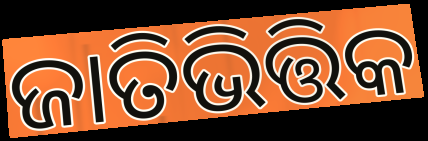
ଜାତିଭିତ୍ତିକ